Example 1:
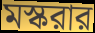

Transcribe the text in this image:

মস্করার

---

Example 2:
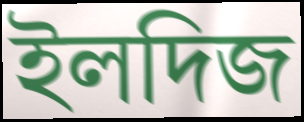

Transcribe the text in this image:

ইলদিজ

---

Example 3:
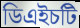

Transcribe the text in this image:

ডিএইচটি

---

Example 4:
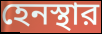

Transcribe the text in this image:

হেনস্থার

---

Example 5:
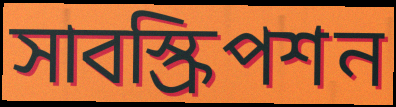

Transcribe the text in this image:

সাবস্ক্রিপশন